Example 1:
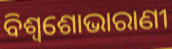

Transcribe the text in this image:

ବିଶ୍ୱଶୋଭାରାଣୀ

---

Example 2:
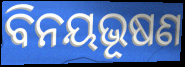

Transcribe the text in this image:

ବିନୟଭୂଷଣ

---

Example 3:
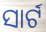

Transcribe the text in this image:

ସାର୍ଟ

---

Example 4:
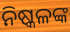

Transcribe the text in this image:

ନିଷ୍କଳଙ୍କ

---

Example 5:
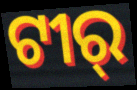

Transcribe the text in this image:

ଟୀର୍